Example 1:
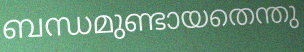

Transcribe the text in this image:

ബന്ധമുണ്ടായതെന്തു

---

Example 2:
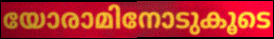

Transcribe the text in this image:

യോരാമിനോടുകൂടെ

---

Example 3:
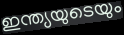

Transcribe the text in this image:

ഇന്ത്യയുടെയും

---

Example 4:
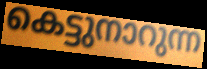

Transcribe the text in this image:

കെട്ടുനാറുന്ന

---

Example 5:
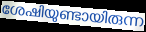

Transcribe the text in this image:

ശേഷിയുണ്ടായിരുന്ന